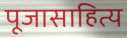
पूजासाहित्य